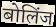
बोलिंज